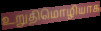
உறுதிமொழியாக